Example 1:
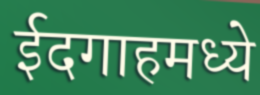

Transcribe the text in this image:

ईदगाहमध्ये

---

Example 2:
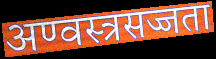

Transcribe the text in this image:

अण्वस्त्रसज्जता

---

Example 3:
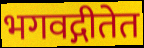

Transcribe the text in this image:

भगवद्गीतेत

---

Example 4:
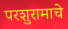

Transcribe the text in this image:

परशुरामाचे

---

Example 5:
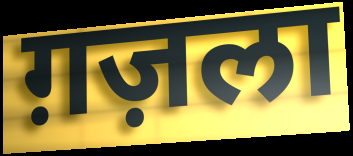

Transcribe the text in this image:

ग़ज़ला